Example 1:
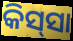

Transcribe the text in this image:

କିସ୍‍ସା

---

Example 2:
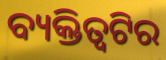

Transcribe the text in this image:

ବ୍ୟକ୍ତିତ୍ୱଟିର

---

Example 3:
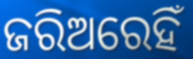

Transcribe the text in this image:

ଜରିଅରେହିଁ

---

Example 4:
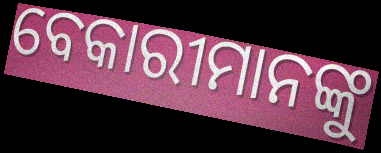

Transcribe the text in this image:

ବେକାରୀମାନଙ୍କୁ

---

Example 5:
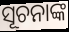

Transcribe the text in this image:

ସୂଚନାଙ୍କ